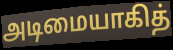
அடிமையாகித்